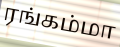
ரங்கம்மா